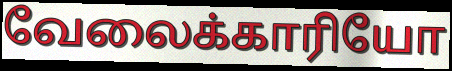
வேலைக்காரியோ